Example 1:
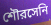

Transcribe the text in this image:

শৌরসেনি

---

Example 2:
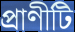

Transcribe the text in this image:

প্রাণীটি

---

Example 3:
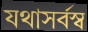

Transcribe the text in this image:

যথাসর্বস্ব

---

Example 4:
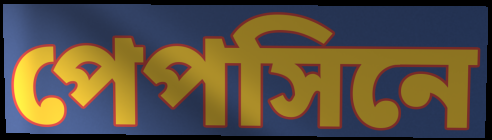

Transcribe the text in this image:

পেপসিনে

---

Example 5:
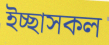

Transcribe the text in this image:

ইচ্ছাসকল